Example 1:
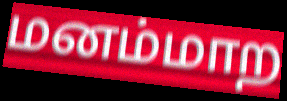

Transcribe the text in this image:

மனம்மாற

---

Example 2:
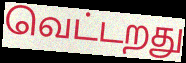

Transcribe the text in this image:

வெட்டறது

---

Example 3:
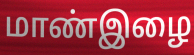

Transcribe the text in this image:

மாண்இழை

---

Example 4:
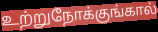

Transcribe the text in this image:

உற்றுநோக்குங்கால்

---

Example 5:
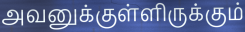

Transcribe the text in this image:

அவனுக்குள்ளிருக்கும்